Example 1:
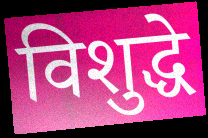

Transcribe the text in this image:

विशुद्धे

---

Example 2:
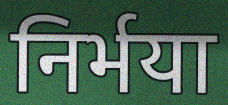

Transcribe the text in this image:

निर्भया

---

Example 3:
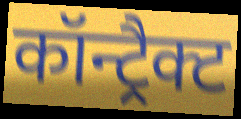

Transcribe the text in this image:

कॉन्‍ट्रैक्‍ट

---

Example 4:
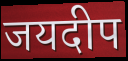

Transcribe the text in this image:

जयदीप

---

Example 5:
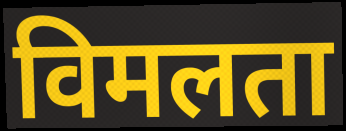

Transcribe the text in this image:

विमलता